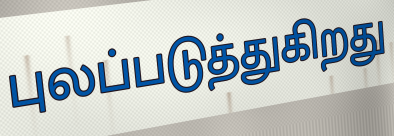
புலப்படுத்துகிறது